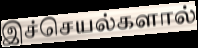
இச்செயல்களால்